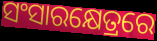
ସଂସାରକ୍ଷେତ୍ରରେ